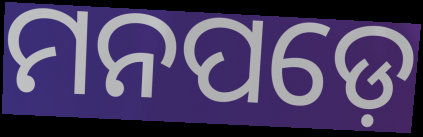
ମନପଡ଼େ